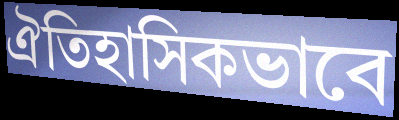
ঐতিহাসিকভাবে